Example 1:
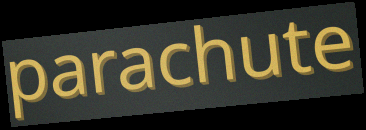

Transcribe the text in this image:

parachute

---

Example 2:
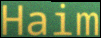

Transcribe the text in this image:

Haim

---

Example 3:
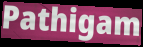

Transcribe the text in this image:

Pathigam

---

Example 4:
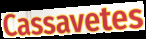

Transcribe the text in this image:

Cassavetes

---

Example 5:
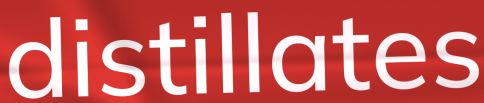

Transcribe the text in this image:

distillates